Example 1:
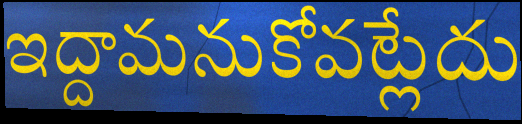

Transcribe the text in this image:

ఇద్దామనుకోవట్లేదు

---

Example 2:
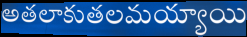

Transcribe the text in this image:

అతలాకుతలమయ్యాయి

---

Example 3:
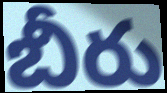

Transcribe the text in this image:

బీరు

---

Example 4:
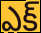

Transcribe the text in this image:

ఎక్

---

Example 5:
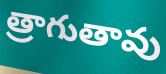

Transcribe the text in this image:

త్రాగుతావు